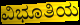
ವಿಭೂತಿಯ